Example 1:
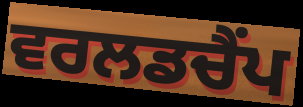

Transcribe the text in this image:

ਵਰਲਡਚੈਂਪ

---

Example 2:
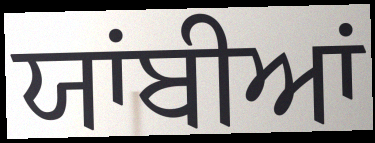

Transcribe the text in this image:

ਯਾਂਬੀਆਂ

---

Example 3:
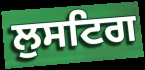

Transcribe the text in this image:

ਲੁਸਟਿਗ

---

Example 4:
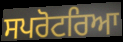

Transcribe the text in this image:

ਸਪਰੋਟਰਿਆ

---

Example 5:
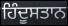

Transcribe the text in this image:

ਹਿੰਦੂਸਤਾਨ